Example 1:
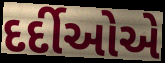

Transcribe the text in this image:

દર્દીઓએ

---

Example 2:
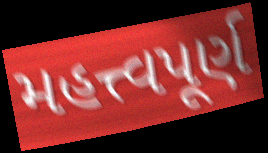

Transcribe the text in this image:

મહત્ત્વપૂર્ણ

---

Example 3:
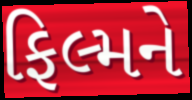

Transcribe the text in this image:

ફિલ્મને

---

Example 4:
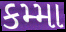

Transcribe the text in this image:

કમ્મા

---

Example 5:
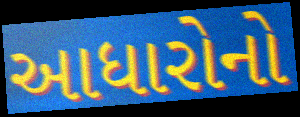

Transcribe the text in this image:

આધારોનો